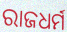
ରାଜଧର୍ମ